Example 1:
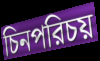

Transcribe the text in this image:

চিনপরিচয়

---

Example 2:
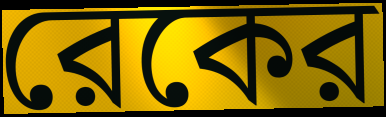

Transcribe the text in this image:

রেকের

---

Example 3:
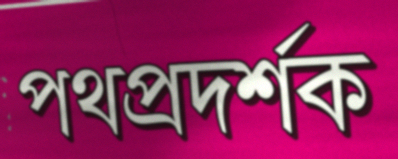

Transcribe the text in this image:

পথপ্রদর্শক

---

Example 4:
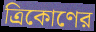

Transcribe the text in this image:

ত্রিকোণের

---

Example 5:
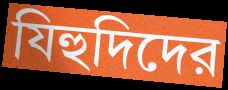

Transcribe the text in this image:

যিহুদিদের